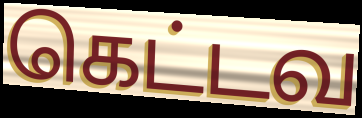
கெட்டவ